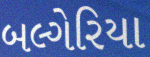
બલ્ગેરિયા